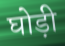
घोड़ी